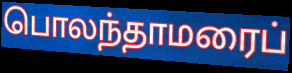
பொலந்தாமரைப்